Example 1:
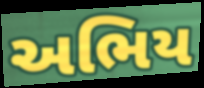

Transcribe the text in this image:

અભિય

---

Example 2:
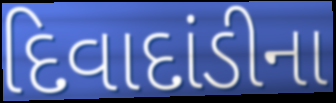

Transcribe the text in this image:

દિવાદાંડીના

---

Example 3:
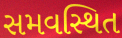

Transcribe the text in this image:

સમવસ્થિત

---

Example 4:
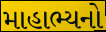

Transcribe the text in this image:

માહાભ્યનો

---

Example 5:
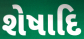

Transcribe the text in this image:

શેષાદિ